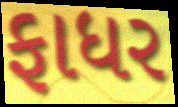
ફાધર